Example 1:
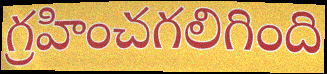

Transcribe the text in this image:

గ్రహించగలిగింది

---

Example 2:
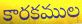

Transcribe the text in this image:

కారకముల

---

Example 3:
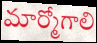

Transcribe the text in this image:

మార్మోగాలి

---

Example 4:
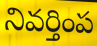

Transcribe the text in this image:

నివర్తింప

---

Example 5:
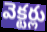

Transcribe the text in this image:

వెక్టర్లు